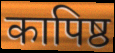
कापिष्ठ